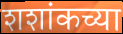
शशांकच्या